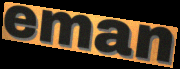
eman